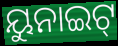
ୟୁନାଇଟ୍